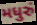
મધુરું